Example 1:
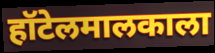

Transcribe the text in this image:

हॉटेलमालकाला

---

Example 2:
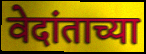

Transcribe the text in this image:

वेदांताच्या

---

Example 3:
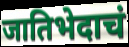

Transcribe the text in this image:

जातिभेदाचं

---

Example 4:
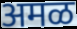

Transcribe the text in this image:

अमळ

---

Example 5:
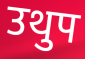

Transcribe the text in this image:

उथुप